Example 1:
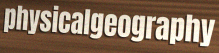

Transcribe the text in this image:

physicalgeography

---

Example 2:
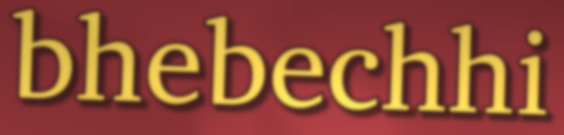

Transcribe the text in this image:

bhebechhi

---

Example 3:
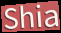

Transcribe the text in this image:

Shia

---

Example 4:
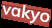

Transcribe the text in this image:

vakyo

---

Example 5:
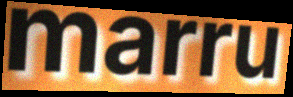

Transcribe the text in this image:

marru